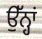
ਉੱਨ੍ਹਾਂ